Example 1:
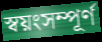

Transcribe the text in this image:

স্বয়ংসম্পূর্ণ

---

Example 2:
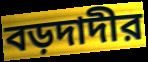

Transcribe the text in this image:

বড়দাদীর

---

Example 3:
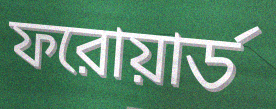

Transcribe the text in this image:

ফরোয়ার্ড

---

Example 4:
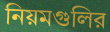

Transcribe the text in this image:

নিয়মগুলির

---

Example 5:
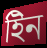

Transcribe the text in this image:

ইিন